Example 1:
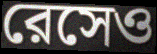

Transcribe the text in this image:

রেসেও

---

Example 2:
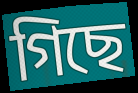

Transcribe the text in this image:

গিছে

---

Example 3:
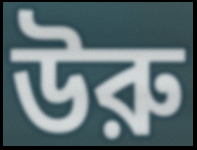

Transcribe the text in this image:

উরু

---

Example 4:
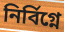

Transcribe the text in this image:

নির্বিগ্নে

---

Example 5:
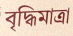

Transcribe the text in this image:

বৃদ্ধিমাত্রা